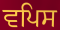
ਵਪਿਸ